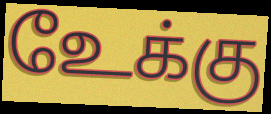
உேக்கு